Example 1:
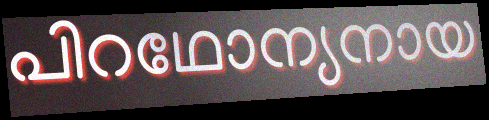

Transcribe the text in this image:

പിറഥോന്യനായ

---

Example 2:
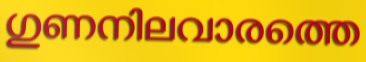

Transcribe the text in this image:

ഗുണനിലവാരത്തെ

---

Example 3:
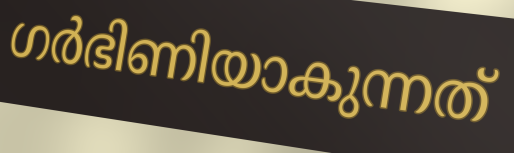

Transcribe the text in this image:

ഗർഭിണിയാകുന്നത്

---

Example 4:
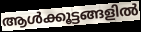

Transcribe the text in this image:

ആൾക്കൂട്ടങ്ങളിൽ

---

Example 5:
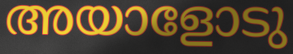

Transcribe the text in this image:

അയാളോടു